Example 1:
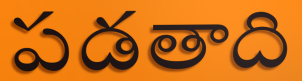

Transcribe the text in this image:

పడతాది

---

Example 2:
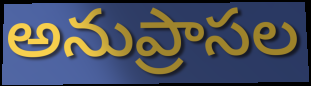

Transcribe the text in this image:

అనుప్రాసల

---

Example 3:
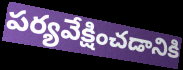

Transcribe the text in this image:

పర్యవేక్షించడానికి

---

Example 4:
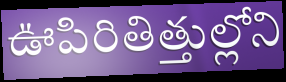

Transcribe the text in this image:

ఊపిరితిత్తుల్లోని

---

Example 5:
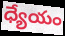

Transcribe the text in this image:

ధ్యేయం